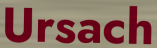
Ursach